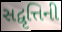
સદ્વૃત્તિની